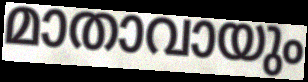
മാതാവായും